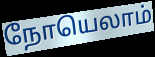
நோயெலாம்